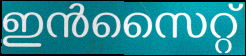
ഇൻസൈറ്റ്